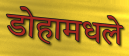
डोहामधले